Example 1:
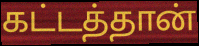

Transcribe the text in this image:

கட்டத்தான்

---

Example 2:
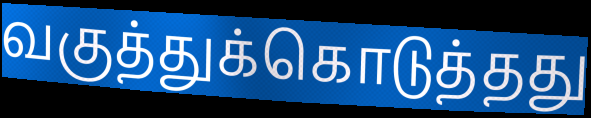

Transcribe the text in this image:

வகுத்துக்கொடுத்தது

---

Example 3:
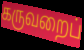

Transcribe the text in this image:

கருவறைப்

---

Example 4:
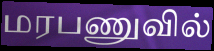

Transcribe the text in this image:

மரபணுவில்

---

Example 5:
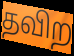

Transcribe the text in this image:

தவிற